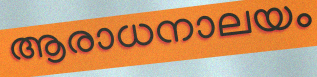
ആരാധനാലയം